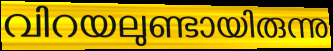
വിറയലുണ്ടായിരുന്നു